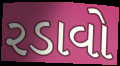
રડાવો